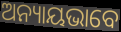
ଅନ୍ୟାୟଭାବେ